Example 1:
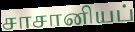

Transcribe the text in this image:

சாசானியப்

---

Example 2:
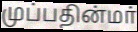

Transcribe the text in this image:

முப்பதின்மர்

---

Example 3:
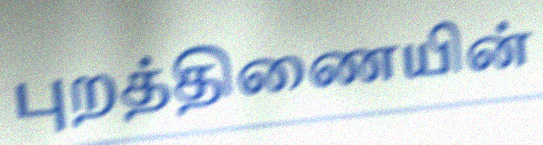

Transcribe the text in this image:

புறத்திணையின்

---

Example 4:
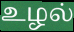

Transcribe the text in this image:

உழல்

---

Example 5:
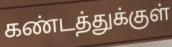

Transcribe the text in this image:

கண்டத்துக்குள்